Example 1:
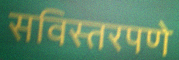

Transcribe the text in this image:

सविस्तरपणे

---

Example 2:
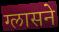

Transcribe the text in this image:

ग्लासने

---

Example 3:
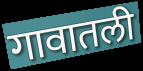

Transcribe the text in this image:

गावातली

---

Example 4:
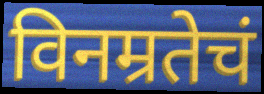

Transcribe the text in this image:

विनम्रतेचं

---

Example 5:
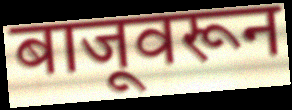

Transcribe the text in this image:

बाजूवरून